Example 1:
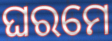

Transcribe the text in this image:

ଘରମେ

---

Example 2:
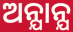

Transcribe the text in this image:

ଅନ୍ଯାନ୍ଯ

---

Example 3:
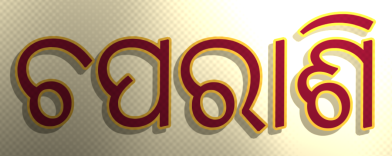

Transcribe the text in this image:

ଚପରାଶି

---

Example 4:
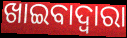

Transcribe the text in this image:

ଖାଇବାଦ୍ଵାରା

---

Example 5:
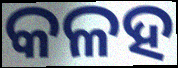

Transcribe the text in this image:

କଳହ